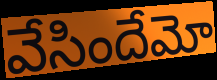
వేసిందేమో